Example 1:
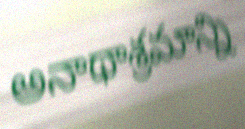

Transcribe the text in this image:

అనాథాశ్రమాన్ని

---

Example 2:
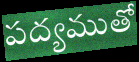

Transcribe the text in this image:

పద్యముతో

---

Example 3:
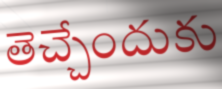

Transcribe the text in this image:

తెచ్చేందుకు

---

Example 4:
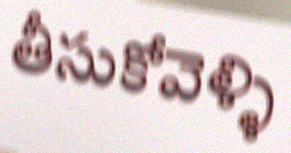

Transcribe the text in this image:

తీసుకోవెళ్ళి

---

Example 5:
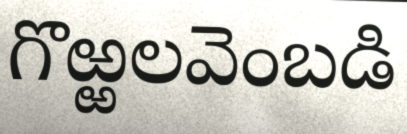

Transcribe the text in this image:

గొఱ్ఱలవెంబడి